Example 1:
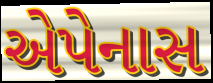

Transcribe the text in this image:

એપેનાસ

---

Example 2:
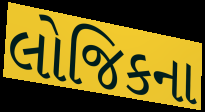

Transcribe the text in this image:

લોજિકના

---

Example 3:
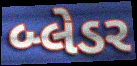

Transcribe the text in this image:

બ્લેડર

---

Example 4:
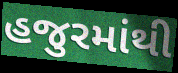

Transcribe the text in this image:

હજુરમાંથી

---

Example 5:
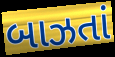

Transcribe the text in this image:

બાઝતાં